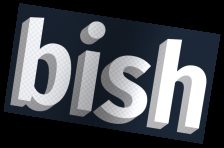
bish